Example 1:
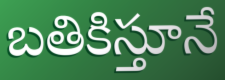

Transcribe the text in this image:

బతికిస్తూనే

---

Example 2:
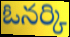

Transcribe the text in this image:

ఓనర్కి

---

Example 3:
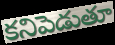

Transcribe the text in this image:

కనిపెడుతూ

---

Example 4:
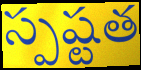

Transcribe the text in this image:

స్పష్టత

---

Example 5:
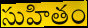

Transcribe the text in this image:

సుహితం